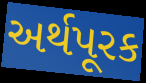
અર્થપૂરક